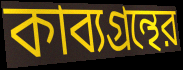
কাব্যগ্রন্থের